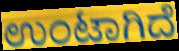
ಉಂಟಾಗಿದೆ